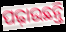
ପଢ଼ାଉଛନ୍ତି